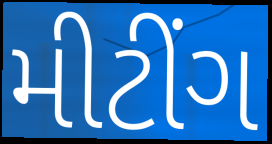
મીટીંગ